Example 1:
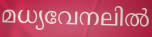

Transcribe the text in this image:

മധ്യവേനലിൽ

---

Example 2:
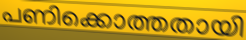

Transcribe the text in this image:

പണിക്കൊത്തതായി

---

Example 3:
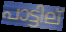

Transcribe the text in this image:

പാട്ടില്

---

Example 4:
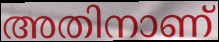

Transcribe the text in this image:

അതിനാണ്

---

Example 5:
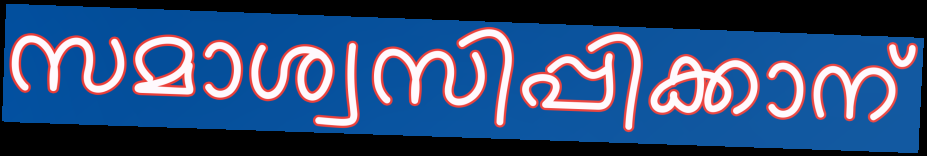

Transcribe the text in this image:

സമാശ്വസിപ്പിക്കാന്